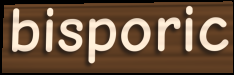
bisporic